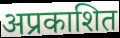
अप्रकाशित